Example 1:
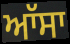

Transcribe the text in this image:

ਆੱਸਾ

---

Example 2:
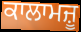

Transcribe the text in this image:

ਕਾਲਾਮਜ਼ੂ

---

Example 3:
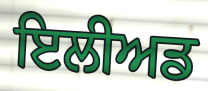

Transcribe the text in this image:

ਇਲੀਅਡ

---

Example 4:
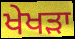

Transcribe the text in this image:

ਖੇਖੜਾ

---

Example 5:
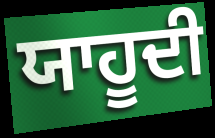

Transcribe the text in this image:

ਯਾਹੂਦੀ